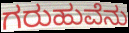
ಗರುಹುವೆನು